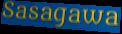
Sasagawa